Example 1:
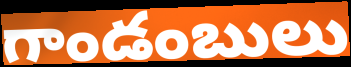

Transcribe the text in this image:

గాండంబులు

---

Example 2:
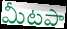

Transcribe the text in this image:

మీటపా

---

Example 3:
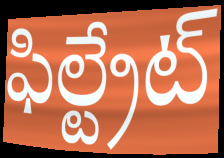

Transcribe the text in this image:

ఫిల్ట్రేట్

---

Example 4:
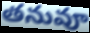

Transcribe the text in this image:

తనువూ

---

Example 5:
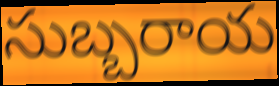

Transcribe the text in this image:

సుబ్బరాయ